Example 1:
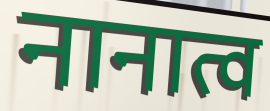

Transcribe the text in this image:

नानात्व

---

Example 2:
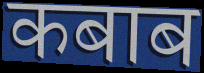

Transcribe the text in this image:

कबाब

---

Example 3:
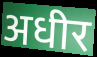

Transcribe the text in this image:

अधीर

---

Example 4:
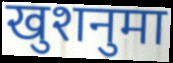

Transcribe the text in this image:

खुशनुमा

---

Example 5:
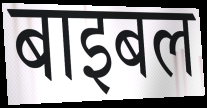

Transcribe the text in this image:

बाइबल